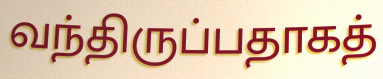
வந்திருப்பதாகத்